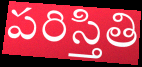
పరిస్తితి